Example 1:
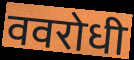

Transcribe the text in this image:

ववरोधी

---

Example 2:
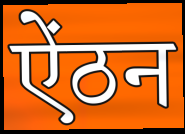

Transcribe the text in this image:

ऐंठन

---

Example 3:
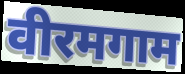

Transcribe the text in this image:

वीरमगाम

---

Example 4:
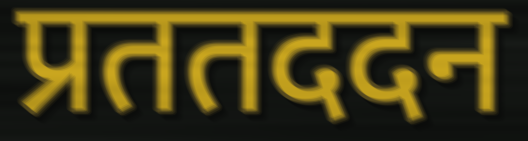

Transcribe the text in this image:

प्रततददन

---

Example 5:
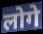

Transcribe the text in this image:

लोगे